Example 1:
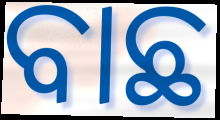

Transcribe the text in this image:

ବାଛ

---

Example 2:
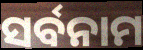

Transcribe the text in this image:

ସର୍ବନାମ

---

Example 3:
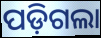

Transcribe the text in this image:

ପଡ଼ିଗଲା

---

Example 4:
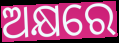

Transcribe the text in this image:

ଅକ୍ଷରେ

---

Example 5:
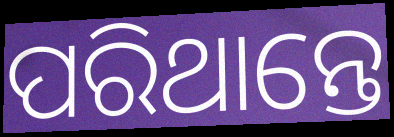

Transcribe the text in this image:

ପରିଥାନ୍ତେ